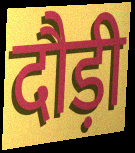
दौड़ी